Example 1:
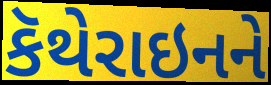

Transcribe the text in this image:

કૅથેરાઇનને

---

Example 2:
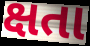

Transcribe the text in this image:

ક્ષતા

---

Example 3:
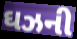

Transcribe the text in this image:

ઘઝની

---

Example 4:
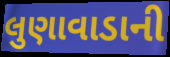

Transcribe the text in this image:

લુણાવાડાની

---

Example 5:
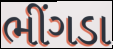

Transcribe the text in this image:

ભીંગડા